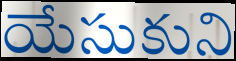
యేసుకుని